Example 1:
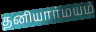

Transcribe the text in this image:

தனியார்மயம்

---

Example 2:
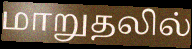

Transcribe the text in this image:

மாறுதலில்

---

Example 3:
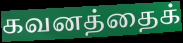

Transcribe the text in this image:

கவனத்தைக்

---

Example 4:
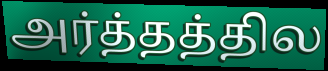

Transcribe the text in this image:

அர்த்தத்தில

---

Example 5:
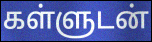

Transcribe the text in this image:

கள்ளுடன்